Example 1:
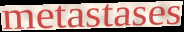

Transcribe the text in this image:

metastases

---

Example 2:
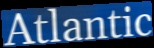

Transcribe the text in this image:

Atlantic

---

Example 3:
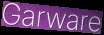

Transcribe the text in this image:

Garware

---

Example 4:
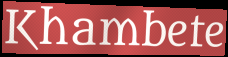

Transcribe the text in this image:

Khambete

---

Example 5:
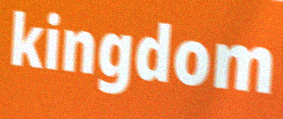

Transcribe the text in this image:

kingdom